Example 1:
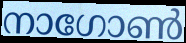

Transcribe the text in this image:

നാഗോൺ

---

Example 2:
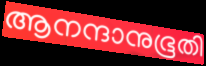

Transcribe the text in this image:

ആനന്ദാനുഭൂതി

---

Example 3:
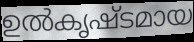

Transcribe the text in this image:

ഉൽകൃഷ്ടമായ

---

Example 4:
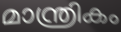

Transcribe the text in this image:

മാന്ത്രികം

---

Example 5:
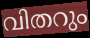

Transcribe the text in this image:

വിതറും